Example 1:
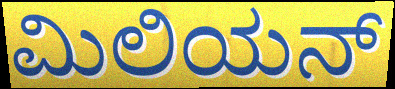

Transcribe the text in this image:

ಮಿಲಿಯನ್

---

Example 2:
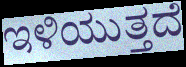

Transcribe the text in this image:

ಇಳಿಯುತ್ತದೆ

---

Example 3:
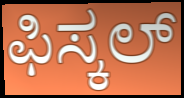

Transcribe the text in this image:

ಫಿಸ್ಕಲ್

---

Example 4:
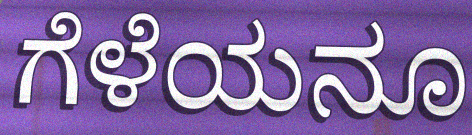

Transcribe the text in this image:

ಗೆಳೆಯನೂ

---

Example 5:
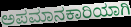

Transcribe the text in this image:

ಅಪಮಾನಕಾರಿಯಾಗಿ